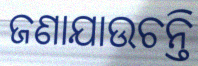
ଜଣାଯାଉଚନ୍ତି